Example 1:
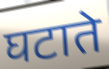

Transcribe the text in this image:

घटाते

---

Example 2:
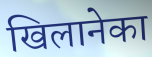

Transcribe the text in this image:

खिलानेका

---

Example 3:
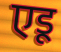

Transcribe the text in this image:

एडू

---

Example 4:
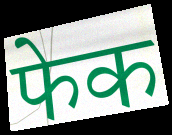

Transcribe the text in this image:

फेक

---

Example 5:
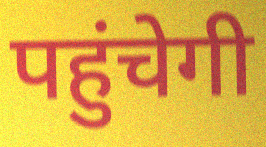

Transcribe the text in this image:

पहुंचेगी